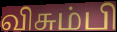
விசும்பி